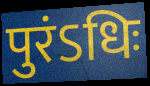
पुरंऽधिः